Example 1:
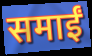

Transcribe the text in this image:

समाईं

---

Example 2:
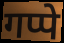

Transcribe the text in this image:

गप्पे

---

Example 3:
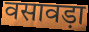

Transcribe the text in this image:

वसावड़ा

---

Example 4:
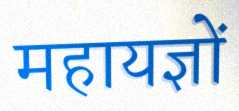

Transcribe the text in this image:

महायज्ञों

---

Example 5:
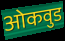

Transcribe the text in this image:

ओकवुड